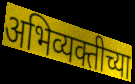
अभिव्यक्तीच्या